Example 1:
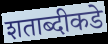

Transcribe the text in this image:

शताब्दीकडे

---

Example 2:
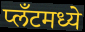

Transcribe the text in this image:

प्लँटमध्ये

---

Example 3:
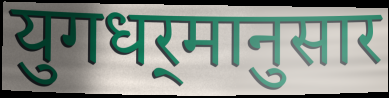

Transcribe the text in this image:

युगधर्मानुसार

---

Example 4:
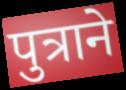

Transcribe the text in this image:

पुत्राने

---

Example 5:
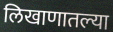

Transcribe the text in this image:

लिखाणातल्या